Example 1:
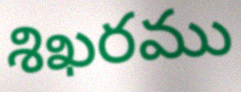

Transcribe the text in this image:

శిఖరము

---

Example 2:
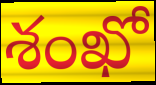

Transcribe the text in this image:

శంఖో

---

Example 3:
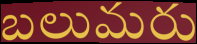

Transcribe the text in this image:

బలుమరు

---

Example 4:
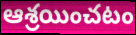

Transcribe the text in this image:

ఆశ్రయించటం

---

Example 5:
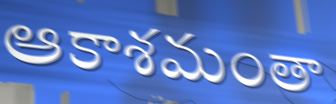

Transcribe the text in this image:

ఆకాశమంతా